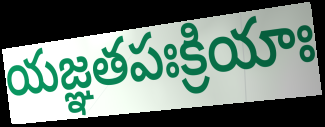
యజ్ఞతపఃక్రియాః